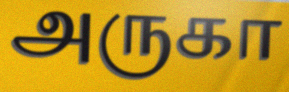
அருகா